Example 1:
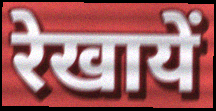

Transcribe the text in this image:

रेखायें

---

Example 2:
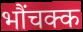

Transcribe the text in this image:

भौंचक्क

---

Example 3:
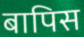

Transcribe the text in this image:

बापिस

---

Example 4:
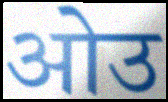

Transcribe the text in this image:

ओउ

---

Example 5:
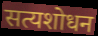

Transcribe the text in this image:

सत्यशोधन